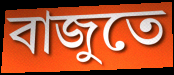
বাজুতে